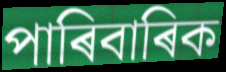
পাৰিবাৰিক